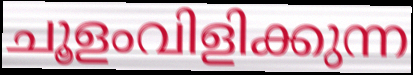
ചൂളംവിളിക്കുന്ന